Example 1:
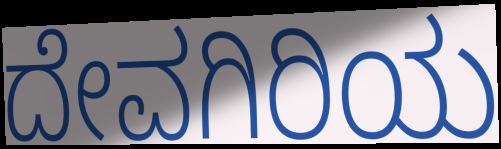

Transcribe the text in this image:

ದೇವಗಿರಿಯ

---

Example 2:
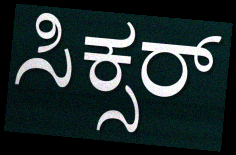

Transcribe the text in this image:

ಸಿಕ್ಸರ್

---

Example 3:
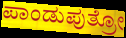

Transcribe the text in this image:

ಪಾಂಡುಪುತ್ರೋ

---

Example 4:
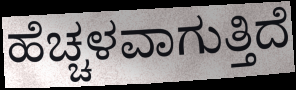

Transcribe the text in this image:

ಹೆಚ್ಚಳವಾಗುತ್ತಿದೆ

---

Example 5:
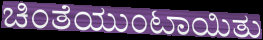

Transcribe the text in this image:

ಚಿಂತೆಯುಂಟಾಯಿತು